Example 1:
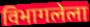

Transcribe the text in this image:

विभागलेला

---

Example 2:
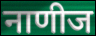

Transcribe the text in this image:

नाणीज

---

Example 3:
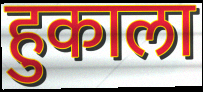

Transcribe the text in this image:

हुकाला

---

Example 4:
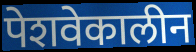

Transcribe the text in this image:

पेशवेकालीन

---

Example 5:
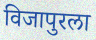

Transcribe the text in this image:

विजापुरला